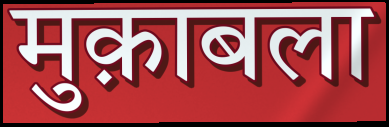
मुक़ाबला